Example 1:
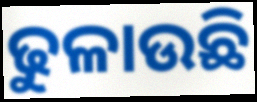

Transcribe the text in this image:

ଢୁଳାଉଛି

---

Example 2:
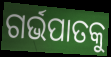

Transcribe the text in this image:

ଗର୍ଭପାତକୁ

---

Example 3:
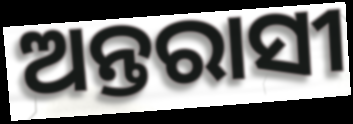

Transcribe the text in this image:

ଅନ୍ତରାସୀ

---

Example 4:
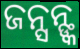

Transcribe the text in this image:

ଜନ୍ସନ୍ଙ୍କ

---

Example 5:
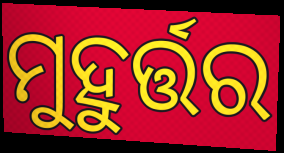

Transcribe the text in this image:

ମୁହୁର୍ତ୍ତର